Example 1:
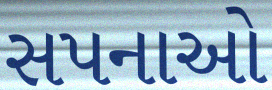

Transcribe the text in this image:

સપનાઓ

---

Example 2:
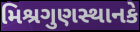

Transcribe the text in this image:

મિશ્રગુણસ્થાનકે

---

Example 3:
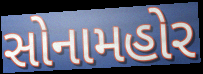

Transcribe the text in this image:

સોનામહોર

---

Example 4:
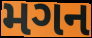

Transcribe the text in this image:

મગન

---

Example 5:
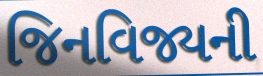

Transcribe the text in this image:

જિનવિજ્યની